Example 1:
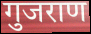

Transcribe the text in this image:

गुजराण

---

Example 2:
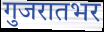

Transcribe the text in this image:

गुजरातभर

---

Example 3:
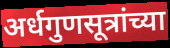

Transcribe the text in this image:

अर्धगुणसूत्रांच्या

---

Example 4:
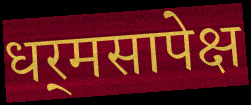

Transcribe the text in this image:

धर्मसापेक्ष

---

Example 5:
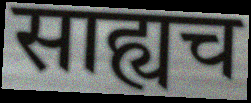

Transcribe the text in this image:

साह्यच